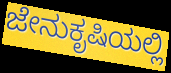
ಜೇನುಕೃಷಿಯಲ್ಲಿ